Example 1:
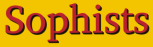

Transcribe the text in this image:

Sophists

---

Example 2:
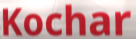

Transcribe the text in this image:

Kochar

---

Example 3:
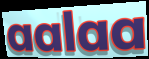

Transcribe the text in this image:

aalaa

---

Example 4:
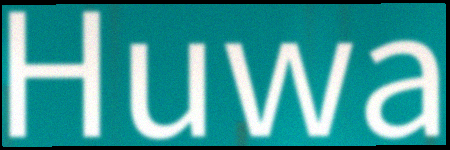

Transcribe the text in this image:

Huwa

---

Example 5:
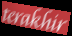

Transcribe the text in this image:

terakhir